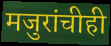
मजुरांचीही